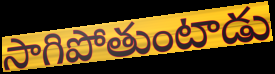
సాగిపోతుంటాడు